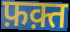
फ़क़्त